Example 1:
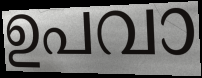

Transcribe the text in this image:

ഉപവാ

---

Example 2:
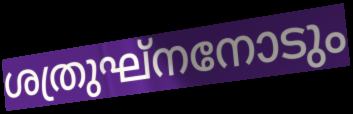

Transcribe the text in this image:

ശത്രുഘ്നനോടും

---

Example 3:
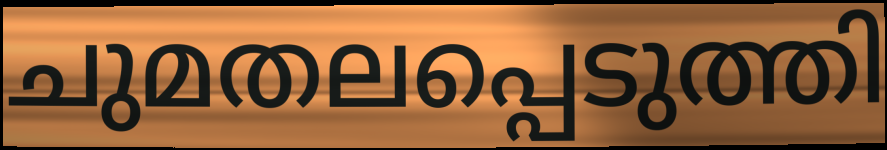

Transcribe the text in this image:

ചുമതലപ്പെടുത്തി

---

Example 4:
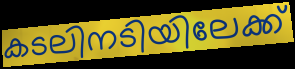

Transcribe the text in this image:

കടലിനടിയിലേക്ക്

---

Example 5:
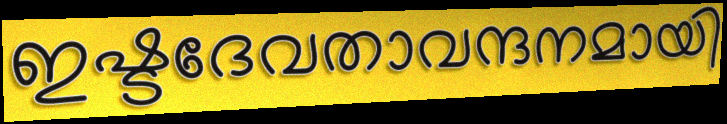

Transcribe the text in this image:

ഇഷ്ടദേവതാവന്ദനമായി